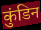
कुंडिन